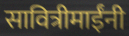
सावित्रीमाईंनी